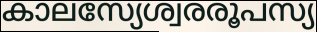
കാലസ്യേശ്വരരൂപസ്യ